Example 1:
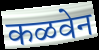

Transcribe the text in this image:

कळवेन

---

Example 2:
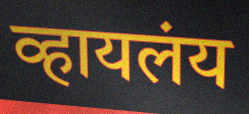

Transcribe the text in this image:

व्हायलंय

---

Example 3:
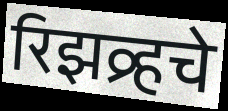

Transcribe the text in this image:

रिझव्र्हचे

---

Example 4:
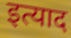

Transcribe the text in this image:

इत्याद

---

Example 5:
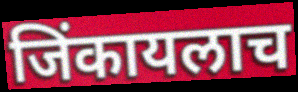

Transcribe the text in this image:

जिंकायलाच